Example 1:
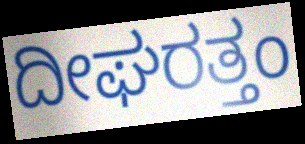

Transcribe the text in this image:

ದೀಘರತ್ತಂ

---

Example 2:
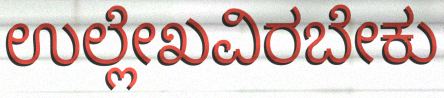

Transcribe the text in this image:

ಉಲ್ಲೇಖವಿರಬೇಕು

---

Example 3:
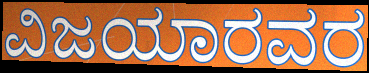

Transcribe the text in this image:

ವಿಜಯಾರವರ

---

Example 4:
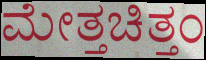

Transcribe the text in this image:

ಮೇತ್ತಚಿತ್ತಂ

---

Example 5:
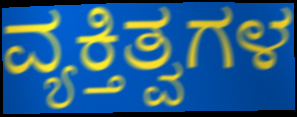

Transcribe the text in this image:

ವ್ಯಕ್ತಿತ್ವಗಳ